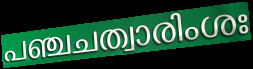
പഞ്ചചത്വാരിംശഃ